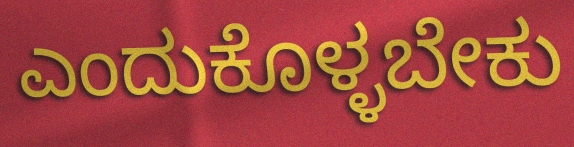
ಎಂದುಕೊಳ್ಳಬೇಕು